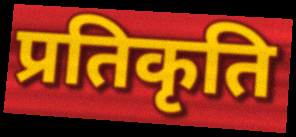
प्रतिकृति